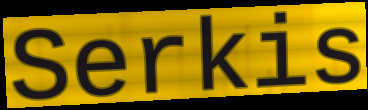
Serkis